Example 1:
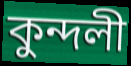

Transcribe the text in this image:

কুন্দলী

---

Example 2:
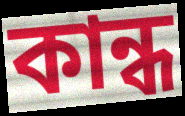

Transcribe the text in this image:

কান্ধ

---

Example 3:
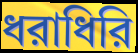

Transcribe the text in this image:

ধরাধিরি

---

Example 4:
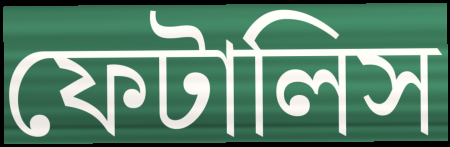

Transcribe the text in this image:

ফেটালিস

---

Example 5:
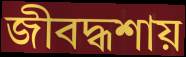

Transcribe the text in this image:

জীবদ্ধশায়